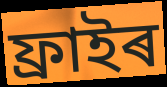
ফ্ৰাইৰ